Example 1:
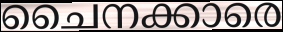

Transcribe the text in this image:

ചൈനക്കാരെ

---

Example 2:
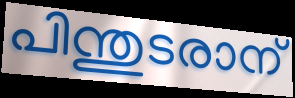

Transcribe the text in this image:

പിന്തുടരാന്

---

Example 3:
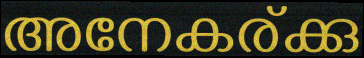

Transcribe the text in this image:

അനേകര്ക്കു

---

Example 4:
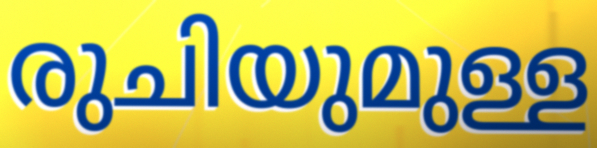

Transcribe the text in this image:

രുചിയുമുള്ള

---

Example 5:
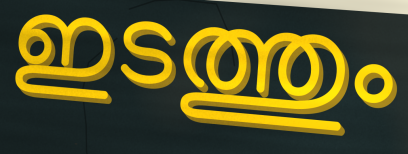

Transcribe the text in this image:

ഇടത്തും